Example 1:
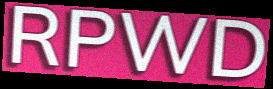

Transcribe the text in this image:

RPWD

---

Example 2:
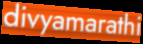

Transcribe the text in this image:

divyamarathi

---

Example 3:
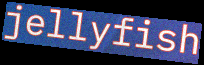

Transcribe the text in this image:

jellyfish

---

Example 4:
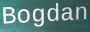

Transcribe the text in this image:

Bogdan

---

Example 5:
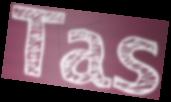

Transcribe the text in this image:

Tas